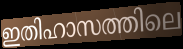
ഇതിഹാസത്തിലെ